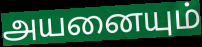
அயனையும்